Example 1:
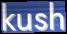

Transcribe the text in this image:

kush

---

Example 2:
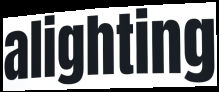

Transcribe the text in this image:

alighting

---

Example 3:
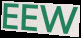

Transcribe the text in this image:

EEW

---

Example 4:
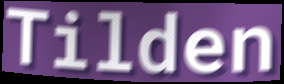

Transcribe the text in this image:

Tilden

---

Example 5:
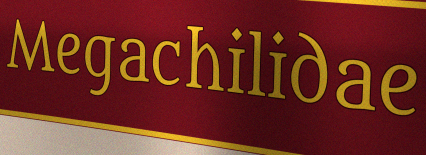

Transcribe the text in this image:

Megachilidae